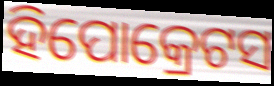
ହିପୋକ୍ରେଟସ